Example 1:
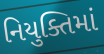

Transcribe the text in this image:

નિયુક્તિમાં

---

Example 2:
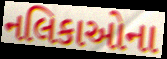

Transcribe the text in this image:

નલિકાઓના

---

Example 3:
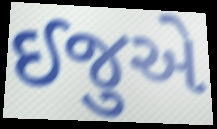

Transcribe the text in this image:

ઈજુએ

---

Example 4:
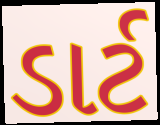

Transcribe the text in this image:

ડાર્ટ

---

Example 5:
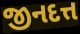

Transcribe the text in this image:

જીનદત્ત